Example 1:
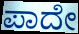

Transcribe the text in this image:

ಪಾದೇ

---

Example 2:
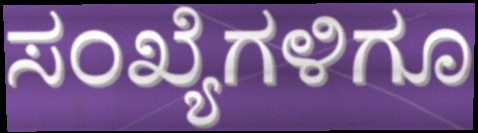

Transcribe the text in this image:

ಸಂಖ್ಯೆಗಳಿಗೂ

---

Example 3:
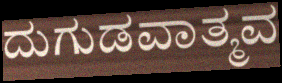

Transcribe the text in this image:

ದುಗುಡವಾತ್ಮವ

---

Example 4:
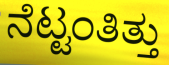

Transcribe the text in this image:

ನೆಟ್ಟಂತಿತ್ತು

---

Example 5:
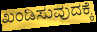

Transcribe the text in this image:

ಖಂಡಿಸುವುದಕ್ಕೆ